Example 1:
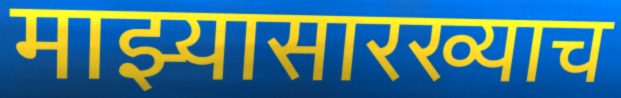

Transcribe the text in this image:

माझ्यासारख्याच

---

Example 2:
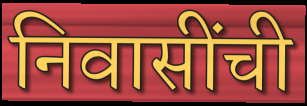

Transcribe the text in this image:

निवासींची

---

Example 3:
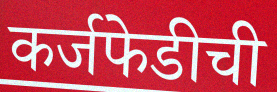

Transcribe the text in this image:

कर्जफेडीची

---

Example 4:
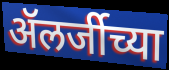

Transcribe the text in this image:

ॲलर्जीच्या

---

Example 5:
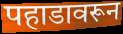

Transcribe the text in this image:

पहाडावरून